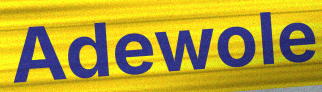
Adewole